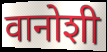
वानोशी